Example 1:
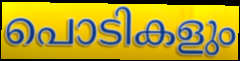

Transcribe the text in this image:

പൊടികളും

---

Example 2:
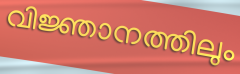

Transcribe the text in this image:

വിജ്ഞാനത്തിലും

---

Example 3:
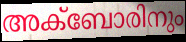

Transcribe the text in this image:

അക്ബോരിനും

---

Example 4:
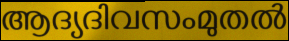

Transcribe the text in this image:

ആദ്യദിവസംമുതൽ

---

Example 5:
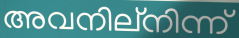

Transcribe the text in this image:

അവനില്നിന്ന്